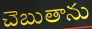
చెబుతాను